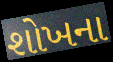
શોખના